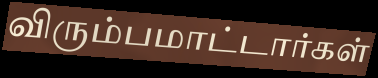
விரும்பமாட்டார்கள்